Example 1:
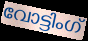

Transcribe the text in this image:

വോട്ടിംഗ്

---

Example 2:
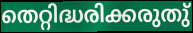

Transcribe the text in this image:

തെറ്റിദ്ധരിക്കരുതു്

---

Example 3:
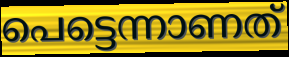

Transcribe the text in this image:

പെട്ടെന്നാണത്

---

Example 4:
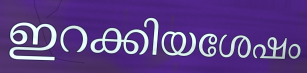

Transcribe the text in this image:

ഇറക്കിയശേഷം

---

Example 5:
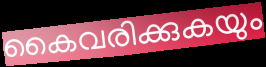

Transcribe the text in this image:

കൈവരിക്കുകയും